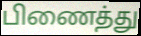
பிணைத்து